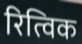
रित्विक